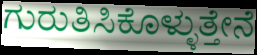
ಗುರುತಿಸಿಕೊಳ್ಳುತ್ತೇನೆ